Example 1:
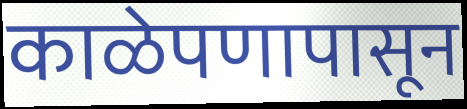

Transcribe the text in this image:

काळेपणापासून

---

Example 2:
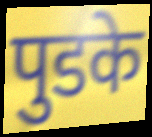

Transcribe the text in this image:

पुडके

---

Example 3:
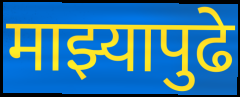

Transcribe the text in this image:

माझ्यापुढे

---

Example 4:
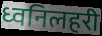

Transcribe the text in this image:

ध्वनिलहरी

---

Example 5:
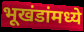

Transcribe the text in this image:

भूखंडांमध्ये